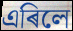
এৰিলে